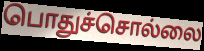
பொதுச்சொல்லை